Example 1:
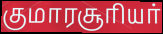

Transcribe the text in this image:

குமாரசூரியர்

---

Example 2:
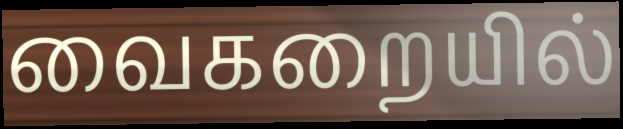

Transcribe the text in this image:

வைகறையில்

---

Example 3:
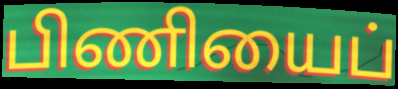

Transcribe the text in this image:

பிணியைப்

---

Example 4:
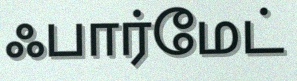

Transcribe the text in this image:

ஃபார்மேட்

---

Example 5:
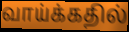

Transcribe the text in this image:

வாய்க்கதில்